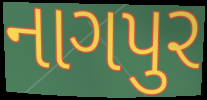
નાગપુર